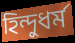
হিন্দুধৰ্ম